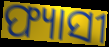
ଫ୍ୟାସୀ